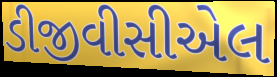
ડીજીવીસીએલ